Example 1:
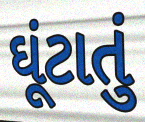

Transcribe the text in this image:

ઘૂંટાતું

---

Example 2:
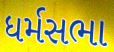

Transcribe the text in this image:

ધર્મસભા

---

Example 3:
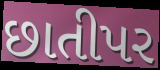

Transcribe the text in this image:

છાતીપર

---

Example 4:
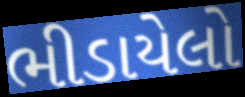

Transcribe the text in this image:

ભીડાયેલો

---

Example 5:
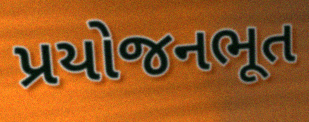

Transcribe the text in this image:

પ્રયોજનભૂત